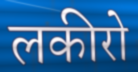
लकीरो